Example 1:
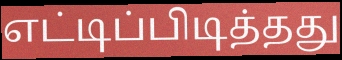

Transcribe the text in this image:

எட்டிப்பிடித்தது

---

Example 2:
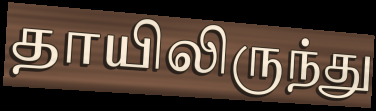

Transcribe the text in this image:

தாயிலிருந்து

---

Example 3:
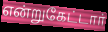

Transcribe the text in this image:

என்றுகேட்டார்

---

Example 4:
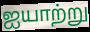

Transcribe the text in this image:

ஐயாற்று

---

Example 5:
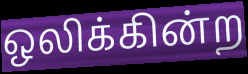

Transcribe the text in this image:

ஒலிக்கின்ற